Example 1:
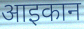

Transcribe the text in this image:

आइकान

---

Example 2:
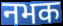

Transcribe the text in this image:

नभक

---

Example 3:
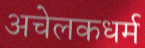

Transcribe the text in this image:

अचेलकधर्म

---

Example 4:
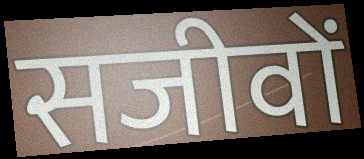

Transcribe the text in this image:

सजीवों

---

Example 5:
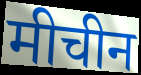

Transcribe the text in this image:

मीचीन